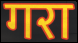
गरा